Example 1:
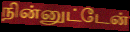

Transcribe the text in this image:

நின்னுட்டேன்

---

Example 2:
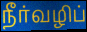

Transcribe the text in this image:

நீர்வழிப்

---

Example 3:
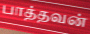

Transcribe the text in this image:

பாத்தவன்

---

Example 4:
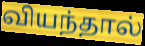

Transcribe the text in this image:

வியந்தால்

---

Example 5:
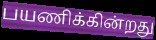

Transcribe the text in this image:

பயணிக்கின்றது